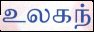
உலகந்